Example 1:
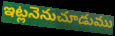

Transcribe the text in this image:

ఇట్లనెనుచూడుము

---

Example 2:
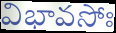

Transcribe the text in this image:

విభావసోః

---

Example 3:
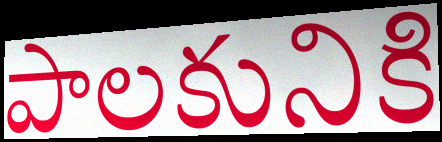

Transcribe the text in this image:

పాలకునికి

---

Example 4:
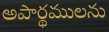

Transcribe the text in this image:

అపార్థములను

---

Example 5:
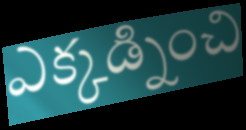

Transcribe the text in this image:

ఎక్కడ్నించి